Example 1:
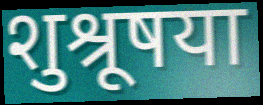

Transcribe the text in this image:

शुश्रूषया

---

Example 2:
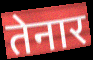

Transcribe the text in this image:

तेनार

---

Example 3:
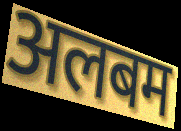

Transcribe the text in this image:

अलबम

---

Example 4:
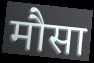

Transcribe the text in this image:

मौसा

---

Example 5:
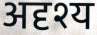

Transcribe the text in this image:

अदृश्य